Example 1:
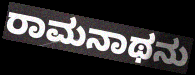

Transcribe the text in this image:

ರಾಮನಾಥನು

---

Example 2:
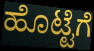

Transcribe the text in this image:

ಹೊಟ್ಟೆಗೆ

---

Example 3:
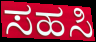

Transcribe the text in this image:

ಸಹಸಿ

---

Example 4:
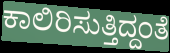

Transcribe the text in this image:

ಕಾಲಿರಿಸುತ್ತಿದ್ದಂತೆ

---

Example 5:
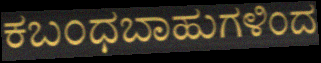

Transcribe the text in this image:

ಕಬಂಧಬಾಹುಗಳಿಂದ